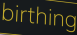
birthing